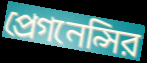
প্রেগনেন্সির